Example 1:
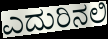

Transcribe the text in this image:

ಎದುರಿನಲಿ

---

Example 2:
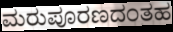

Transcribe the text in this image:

ಮರುಪೂರಣದಂತಹ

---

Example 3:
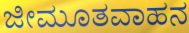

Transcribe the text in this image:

ಜೀಮೂತವಾಹನ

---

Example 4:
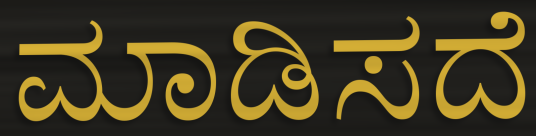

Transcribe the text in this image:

ಮಾಡಿಸದೆ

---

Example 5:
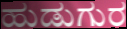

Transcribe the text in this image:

ಹುಡುಗುರ